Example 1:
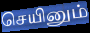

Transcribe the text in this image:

செயினும்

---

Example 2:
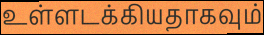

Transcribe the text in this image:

உள்ளடக்கியதாகவும்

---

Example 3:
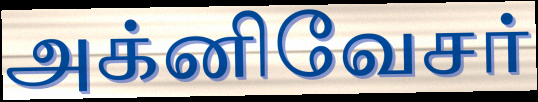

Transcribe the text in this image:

அக்னிவேசர்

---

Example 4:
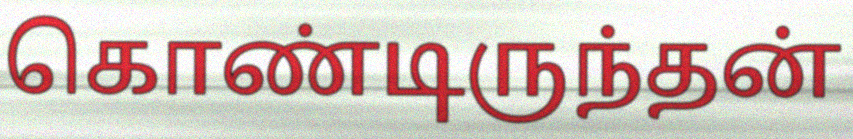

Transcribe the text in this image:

கொண்டிருந்தன்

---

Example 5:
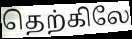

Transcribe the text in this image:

தெற்கிலே